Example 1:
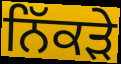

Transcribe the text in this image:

ਨਿੱਕੜੇ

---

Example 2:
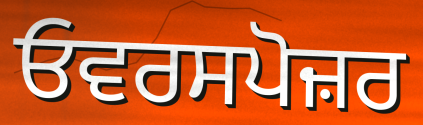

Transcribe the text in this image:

ਓਵਰਸਪੋਜ਼ਰ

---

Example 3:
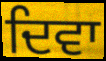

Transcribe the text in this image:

ਦਿਵਾ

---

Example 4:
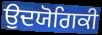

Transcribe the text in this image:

ਉਦਯੋਗਿਕੀ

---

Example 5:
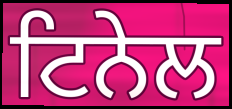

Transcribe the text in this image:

ਟਿਨੇਲ